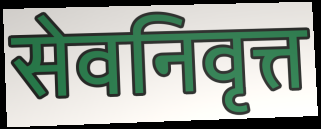
सेवनिवृत्त